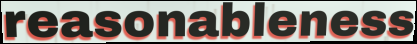
reasonableness